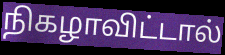
நிகழாவிட்டால்